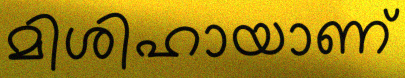
മിശിഹായാണ്